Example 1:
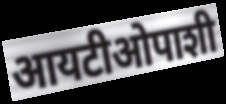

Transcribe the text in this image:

आयटीओपाशी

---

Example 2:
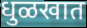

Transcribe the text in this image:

धुळखात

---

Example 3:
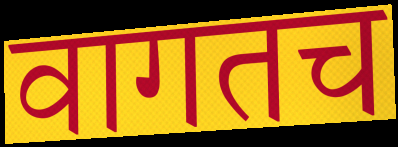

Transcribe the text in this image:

वागतच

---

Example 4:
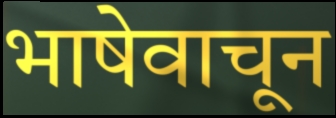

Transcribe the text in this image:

भाषेवाचून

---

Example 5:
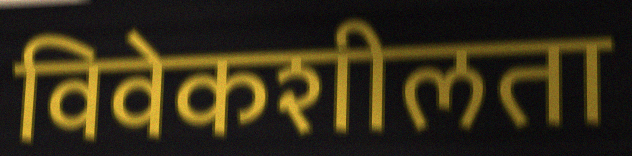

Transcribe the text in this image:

विवेकशीलता